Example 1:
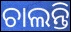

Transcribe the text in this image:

ଚାଲନ୍ତି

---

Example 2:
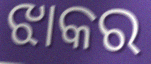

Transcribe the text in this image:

ଝାକର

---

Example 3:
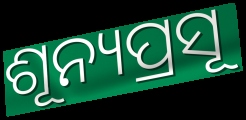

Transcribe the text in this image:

ଶୂନ୍ୟପ୍ରସୂ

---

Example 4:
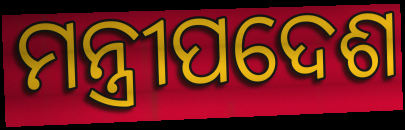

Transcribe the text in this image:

ମନ୍ତ୍ରୀପଦେଶ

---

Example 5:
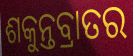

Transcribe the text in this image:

ଶକୁନ୍ତବ୍ରାତର